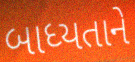
બાધ્યતાને